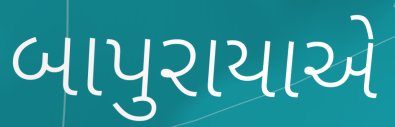
બાપુરાયાએ